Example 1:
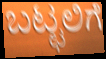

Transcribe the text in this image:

ಬಟ್ಟಲಿಗೆ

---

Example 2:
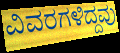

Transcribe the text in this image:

ವಿವರಗಳಿದ್ದವು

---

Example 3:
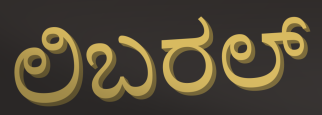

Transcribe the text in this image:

ಲಿಬರಲ್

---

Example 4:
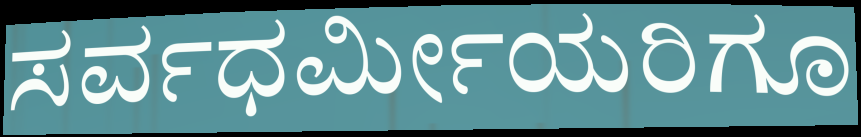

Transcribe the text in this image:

ಸರ್ವಧರ್ಮೀಯರಿಗೂ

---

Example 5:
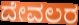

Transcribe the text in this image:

ದೇವಲರ